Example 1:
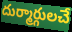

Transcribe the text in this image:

దుర్మార్గులచే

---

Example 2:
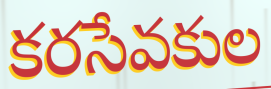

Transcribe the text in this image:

కరసేవకుల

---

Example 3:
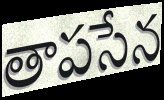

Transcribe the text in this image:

తాపసేన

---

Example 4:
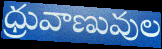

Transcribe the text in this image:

ధ్రువాణువుల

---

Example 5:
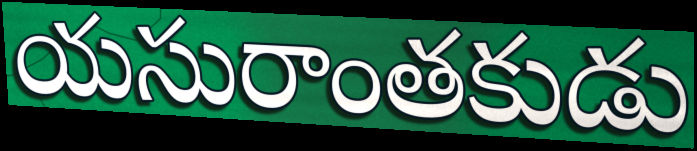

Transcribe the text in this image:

యసురాంతకుడు